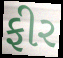
ફીર